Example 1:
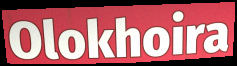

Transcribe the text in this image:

Olokhoira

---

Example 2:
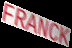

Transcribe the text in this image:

FRANCK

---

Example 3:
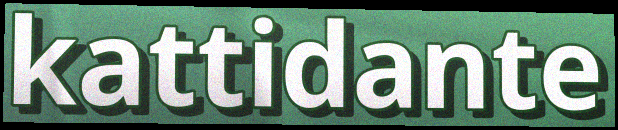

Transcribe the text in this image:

kattidante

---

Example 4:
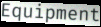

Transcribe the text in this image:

Equipment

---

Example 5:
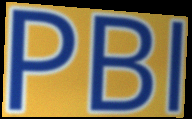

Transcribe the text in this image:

PBI